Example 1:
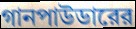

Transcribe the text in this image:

গানপাউডারের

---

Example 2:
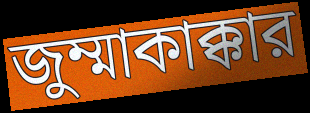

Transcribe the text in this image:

জুম্মাকাক্কার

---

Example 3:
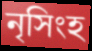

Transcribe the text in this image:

নৃসিংহ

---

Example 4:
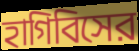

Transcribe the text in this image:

হাগিবিসের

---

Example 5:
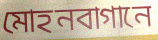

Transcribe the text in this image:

মোহনবাগানে